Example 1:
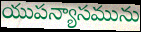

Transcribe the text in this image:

యుపన్యాసమును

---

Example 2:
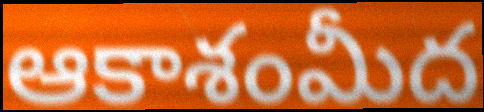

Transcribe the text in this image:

ఆకాశంమీద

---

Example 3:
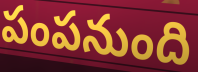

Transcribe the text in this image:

పంపనుంది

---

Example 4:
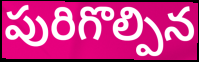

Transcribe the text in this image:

పురిగొల్పిన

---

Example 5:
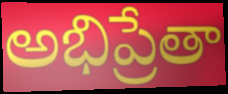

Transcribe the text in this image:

అభిప్రేతా